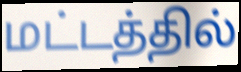
மட்டத்தில்